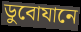
ডুবোযানে